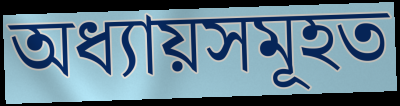
অধ্যায়সমূহত